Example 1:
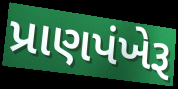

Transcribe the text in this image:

પ્રાણપંખેરૂ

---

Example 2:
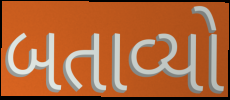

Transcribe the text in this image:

બતાવ્યો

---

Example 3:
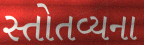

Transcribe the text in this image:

સ્તોતવ્યના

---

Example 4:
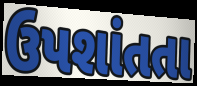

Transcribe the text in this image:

ઉપશાંતતા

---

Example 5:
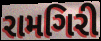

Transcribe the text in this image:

રામગિરી